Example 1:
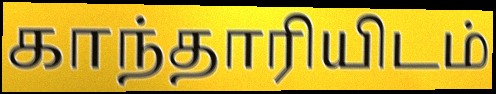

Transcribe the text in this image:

காந்தாரியிடம்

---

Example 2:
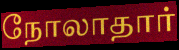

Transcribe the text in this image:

நோலாதார்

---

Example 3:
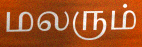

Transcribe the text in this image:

மலரும்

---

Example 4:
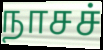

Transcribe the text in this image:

நாசச்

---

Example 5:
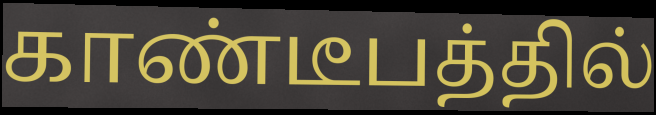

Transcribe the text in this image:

காண்டீபத்தில்